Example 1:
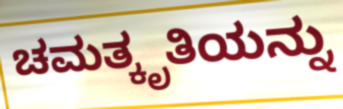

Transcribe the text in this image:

ಚಮತ್ಕೃತಿಯನ್ನು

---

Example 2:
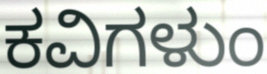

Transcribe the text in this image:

ಕವಿಗಳುಂ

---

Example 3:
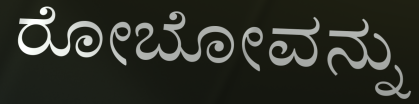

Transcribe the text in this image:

ರೋಬೋವನ್ನು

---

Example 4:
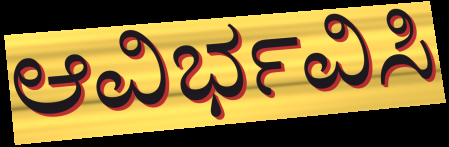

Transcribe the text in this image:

ಆವಿರ್ಭವಿಸಿ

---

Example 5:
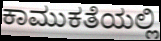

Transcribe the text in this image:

ಕಾಮುಕತೆಯಲ್ಲಿ